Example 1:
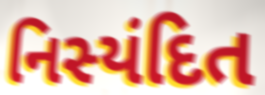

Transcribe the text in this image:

નિસ્યંદિત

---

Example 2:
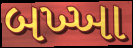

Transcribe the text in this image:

બખ્ખા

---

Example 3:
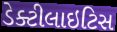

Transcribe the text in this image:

ડેક્ટીલાઇટિસ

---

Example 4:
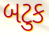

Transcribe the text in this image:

બટુક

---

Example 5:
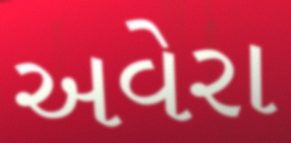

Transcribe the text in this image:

અવેરા